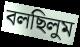
বলছিলুম